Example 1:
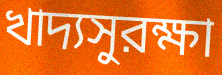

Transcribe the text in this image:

খাদ্যসুরক্ষা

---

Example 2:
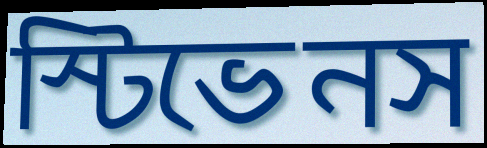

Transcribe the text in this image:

স্টিভেনস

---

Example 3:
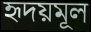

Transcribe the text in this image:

হৃদয়মূল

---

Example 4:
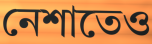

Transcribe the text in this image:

নেশাতেও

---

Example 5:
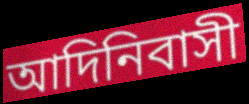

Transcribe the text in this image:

আদিনিবাসী